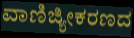
ವಾಣಿಜ್ಯೀಕರಣದ